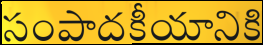
సంపాదకీయానికి